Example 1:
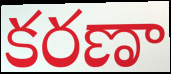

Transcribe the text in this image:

కరణా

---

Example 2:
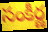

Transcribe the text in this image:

సంకీర్ణ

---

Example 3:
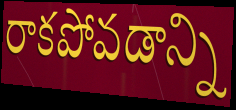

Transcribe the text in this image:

రాకపోవడాన్ని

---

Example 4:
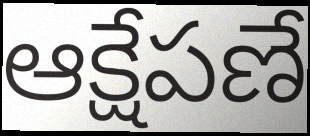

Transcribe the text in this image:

ఆక్షేపణే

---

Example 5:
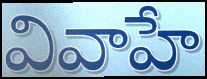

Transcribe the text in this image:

వివాహే